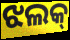
ଝଲକ୍